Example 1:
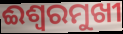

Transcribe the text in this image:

ଈଶ୍ୱରମୁଖୀ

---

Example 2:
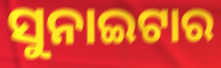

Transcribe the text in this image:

ସୁନାଇଟାର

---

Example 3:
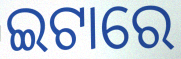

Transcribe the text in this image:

ଇଟାରେ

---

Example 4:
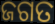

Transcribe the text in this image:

ଜଗତ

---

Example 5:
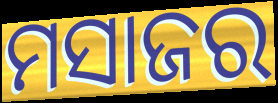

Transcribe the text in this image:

ମସାଜର